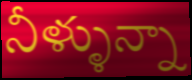
నీళ్ళున్నా